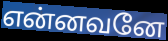
என்னவனே